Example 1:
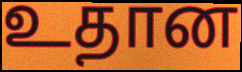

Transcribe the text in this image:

உதான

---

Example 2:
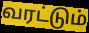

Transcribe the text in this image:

வரட்டும்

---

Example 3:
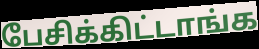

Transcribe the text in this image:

பேசிக்கிட்டாங்க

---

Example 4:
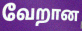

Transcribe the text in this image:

வேறான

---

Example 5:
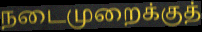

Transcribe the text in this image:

நடைமுறைக்குத்